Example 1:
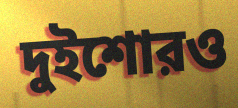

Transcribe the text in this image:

দুইশোরও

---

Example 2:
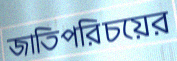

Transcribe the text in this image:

জাতিপরিচয়ের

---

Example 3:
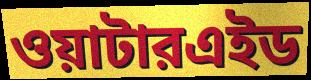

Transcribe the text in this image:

ওয়াটারএইড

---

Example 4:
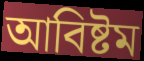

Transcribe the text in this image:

আবিষ্টম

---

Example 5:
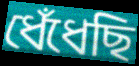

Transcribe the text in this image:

ধেঁধেছি